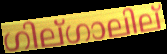
ഗില്ഗാലില്